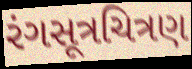
રંગસૂત્રચિત્રણ